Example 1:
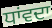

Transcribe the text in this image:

ਧਾਂਵਦਾ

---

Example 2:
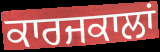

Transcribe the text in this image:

ਕਾਰਜਕਾਲਾਂ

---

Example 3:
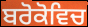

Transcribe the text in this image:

ਬਰੋਕੋਵਿਚ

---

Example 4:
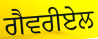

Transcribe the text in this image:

ਗੈਵਰੀਏਲ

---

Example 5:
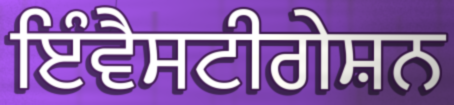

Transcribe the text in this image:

ਇੰਵੈਸਟੀਗੇਸ਼ਨ